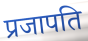
प्रजापति